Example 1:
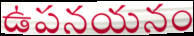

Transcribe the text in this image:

ఉపనయనం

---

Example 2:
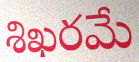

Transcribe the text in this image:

శిఖరమే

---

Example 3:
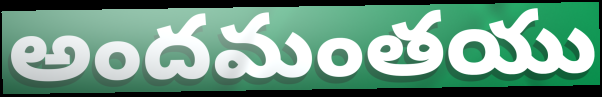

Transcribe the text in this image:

అందమంతయు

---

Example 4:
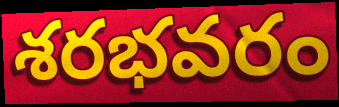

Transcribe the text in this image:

శరభవరం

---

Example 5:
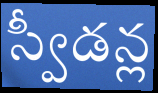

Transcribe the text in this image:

స్వీడన్ల